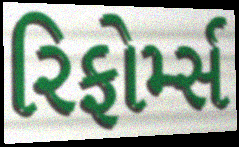
રિફોર્મ્સ